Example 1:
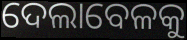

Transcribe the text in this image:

ଦେଲାବେଳକୁ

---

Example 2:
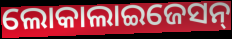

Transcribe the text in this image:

ଲୋକାଲାଇଜେସନ୍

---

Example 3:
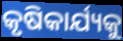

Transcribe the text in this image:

କୃଷିକାର୍ଯ୍ୟକୁ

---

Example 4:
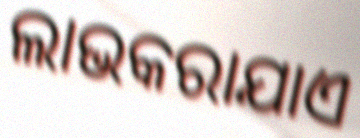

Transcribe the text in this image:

ଲାଭକରାଯାଏ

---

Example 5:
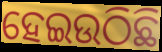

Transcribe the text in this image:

ହେଇଉଠିଛି